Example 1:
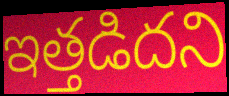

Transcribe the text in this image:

ఇత్తడిదని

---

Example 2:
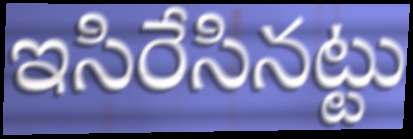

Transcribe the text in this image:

ఇసిరేసినట్టు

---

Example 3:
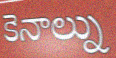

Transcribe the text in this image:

కెనాల్ను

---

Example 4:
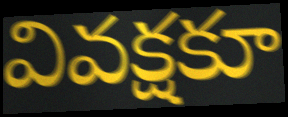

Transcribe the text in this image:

వివక్షకూ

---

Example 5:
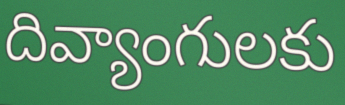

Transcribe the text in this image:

దివ్యాంగులకు